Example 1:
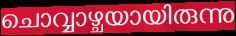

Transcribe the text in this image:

ചൊവ്വാഴ്ചയായിരുന്നു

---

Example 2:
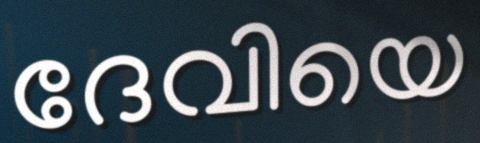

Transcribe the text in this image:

ദേവിയെ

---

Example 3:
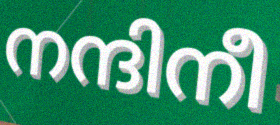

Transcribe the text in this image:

നന്ദിനീ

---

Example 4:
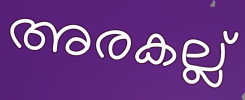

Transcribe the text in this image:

അരകല്ല്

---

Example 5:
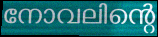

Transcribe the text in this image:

നോവലിന്റെ